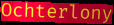
Ochterlony